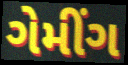
ગેમીંગ